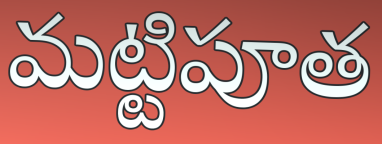
మట్టిపూత